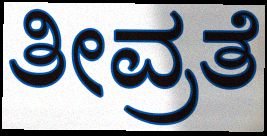
ತೀವ್ರತೆ